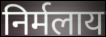
निर्मलाय